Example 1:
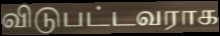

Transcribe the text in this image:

விடுபட்டவராக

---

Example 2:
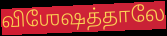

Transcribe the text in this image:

விஶேஷத்தாலே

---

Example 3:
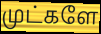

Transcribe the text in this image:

முட்களே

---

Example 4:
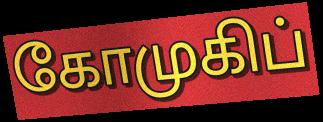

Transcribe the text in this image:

கோமுகிப்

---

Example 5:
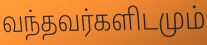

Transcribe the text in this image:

வந்தவர்களிடமும்